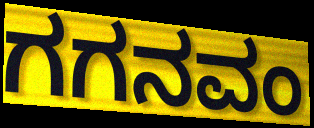
ಗಗನವಂ